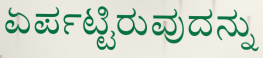
ಏರ್ಪಟ್ಟಿರುವುದನ್ನು